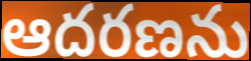
ఆదరణను